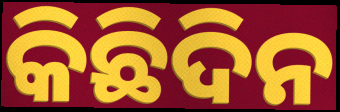
କିଛିଦିନ